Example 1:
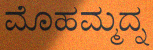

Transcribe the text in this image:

ಮೊಹಮ್ಮದ್ನ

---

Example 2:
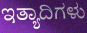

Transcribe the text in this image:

ಇತ್ಯಾದಿಗಳು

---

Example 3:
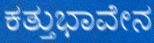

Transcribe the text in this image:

ಕತ್ತುಭಾವೇನ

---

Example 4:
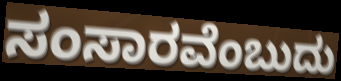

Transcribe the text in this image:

ಸಂಸಾರವೆಂಬುದು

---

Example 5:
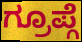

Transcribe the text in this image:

ಗ್ರೂಪ್ಗೆ